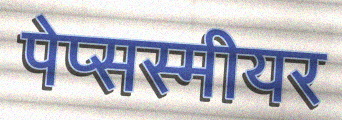
पेप्सस्मीयर